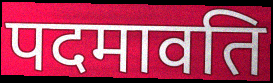
पदमावति